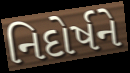
નિદોર્ષને